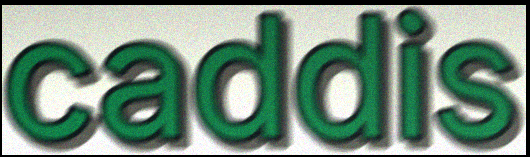
caddis